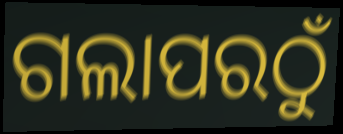
ଗଲାପରଠୁଁ